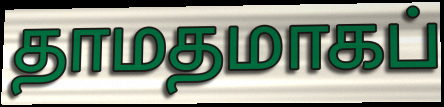
தாமதமாகப்